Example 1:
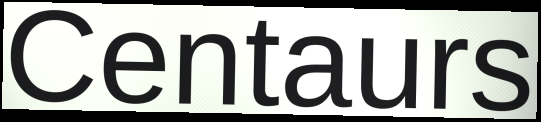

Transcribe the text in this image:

Centaurs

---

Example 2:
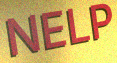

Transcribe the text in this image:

NELP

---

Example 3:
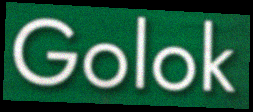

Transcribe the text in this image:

Golok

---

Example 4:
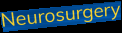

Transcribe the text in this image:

Neurosurgery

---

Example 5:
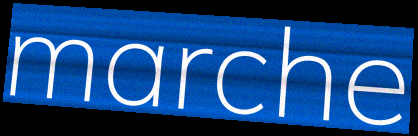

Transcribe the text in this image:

marche